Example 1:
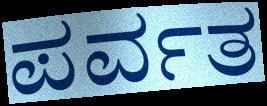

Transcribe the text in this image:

ಪರ್ವತ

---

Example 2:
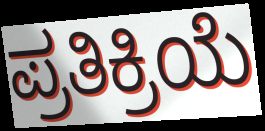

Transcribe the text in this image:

ಪ್ರತಿಕ್ರಿಯೆ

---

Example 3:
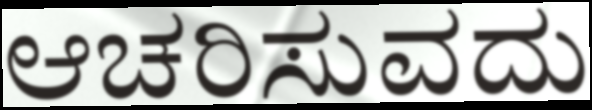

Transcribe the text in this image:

ಆಚರಿಸುವದು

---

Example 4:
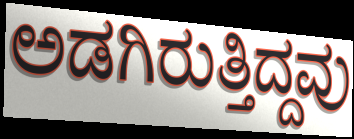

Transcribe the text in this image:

ಅಡಗಿರುತ್ತಿದ್ದವು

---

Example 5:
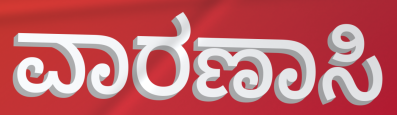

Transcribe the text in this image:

ವಾರಣಾಸಿ